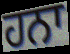
ਹਨਾ